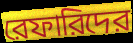
রেফারিদের